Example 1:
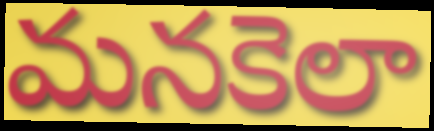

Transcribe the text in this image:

మనకెలా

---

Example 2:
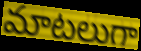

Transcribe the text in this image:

మాటలుగా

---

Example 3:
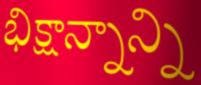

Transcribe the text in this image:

భిక్షాన్నాన్ని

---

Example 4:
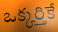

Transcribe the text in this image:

ఒక్కర్తికే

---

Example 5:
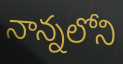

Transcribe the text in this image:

నాన్నలోని